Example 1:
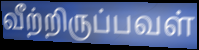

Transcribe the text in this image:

வீற்றிருப்பவள்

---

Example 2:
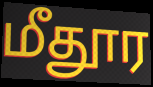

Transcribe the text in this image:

மீதூர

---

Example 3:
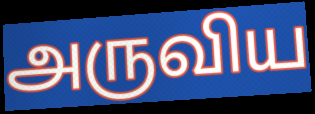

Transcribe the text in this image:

அருவிய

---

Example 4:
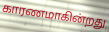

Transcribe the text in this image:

காரணமாகின்றது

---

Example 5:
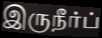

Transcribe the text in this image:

இருநீர்ப்